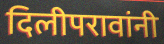
दिलीपरावांनी